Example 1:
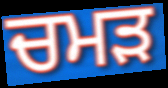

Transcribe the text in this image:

ਚਮੜ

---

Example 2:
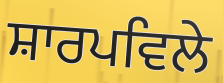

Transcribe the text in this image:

ਸ਼ਾਰਪਵਿਲੇ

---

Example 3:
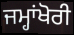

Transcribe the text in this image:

ਜਮ੍ਹਾਂਖੋਰੀ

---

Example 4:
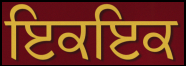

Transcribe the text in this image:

ਇਕਇਕ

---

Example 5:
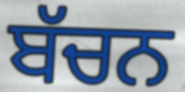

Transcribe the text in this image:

ਬੱਚਨ